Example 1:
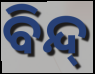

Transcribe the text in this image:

ବିନ୍ଦ୍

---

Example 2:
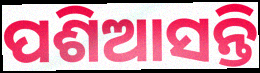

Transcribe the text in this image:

ପଶିଆସନ୍ତି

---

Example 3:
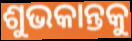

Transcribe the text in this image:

ଶୁଭକାନ୍ତକୁ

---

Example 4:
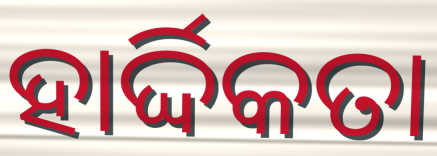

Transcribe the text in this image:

ହାର୍ଦ୍ଦିକତା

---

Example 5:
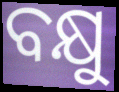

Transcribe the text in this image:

ବକ୍ଷୁ